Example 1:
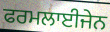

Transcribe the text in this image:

ਫਰਮਲਾਈਜੇਨ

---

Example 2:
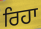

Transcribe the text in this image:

ਰਿਹਾ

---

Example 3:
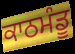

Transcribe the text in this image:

ਕਾਠਮੰਡੂ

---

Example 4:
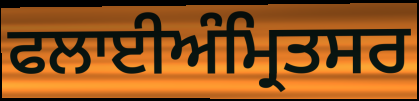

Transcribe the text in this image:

ਫਲਾਈਅੰਮ੍ਰਿਤਸਰ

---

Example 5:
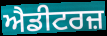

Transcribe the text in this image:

ਐਡੀਟਰਜ਼